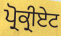
ਪ੍ਰੋਕ੍ਰੀਏਟ